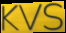
KVS